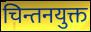
चिन्तनयुक्त